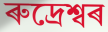
ৰুদ্ৰেশ্বৰ